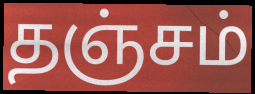
தஞ்சம்